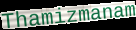
Thamizmanam